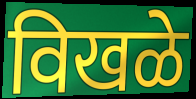
विखळे